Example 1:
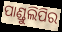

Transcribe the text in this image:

ପାଣ୍ଡୁଲିପିର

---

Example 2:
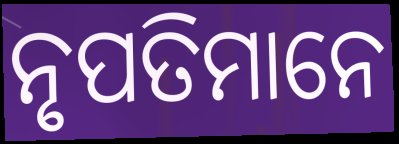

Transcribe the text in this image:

ନୃପତିମାନେ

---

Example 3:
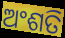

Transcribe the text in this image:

ଅଂଶତି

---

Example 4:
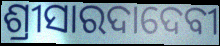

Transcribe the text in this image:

ଶ୍ରୀସାରଦାଦେବୀ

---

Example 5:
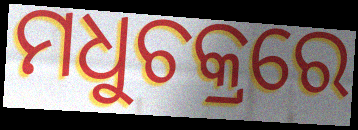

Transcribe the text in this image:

ମଧୁଚକ୍ରରେ